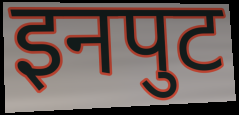
इनपुट